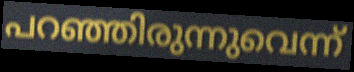
പറഞ്ഞിരുന്നുവെന്ന്